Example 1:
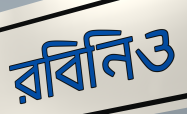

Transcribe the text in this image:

রবিনিও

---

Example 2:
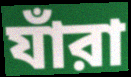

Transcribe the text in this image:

যাঁরা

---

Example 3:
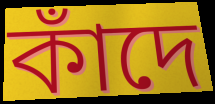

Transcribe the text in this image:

কাঁদে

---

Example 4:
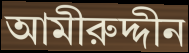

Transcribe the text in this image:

আমীরুদ্দীন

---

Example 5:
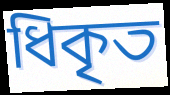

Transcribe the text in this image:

ধিকৃত